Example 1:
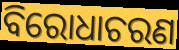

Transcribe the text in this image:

ବିରୋଧାଚରଣ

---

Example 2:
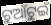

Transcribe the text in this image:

ଟୁଆଁଟୁଇଁ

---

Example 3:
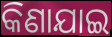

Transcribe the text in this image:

କିଣାଯାଇ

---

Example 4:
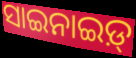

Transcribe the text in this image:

ସାଇନାଇଡ଼୍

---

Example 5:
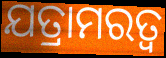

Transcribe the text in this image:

ଯତ୍ରାମରତ୍ଵ